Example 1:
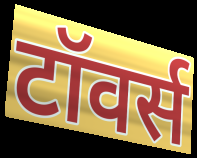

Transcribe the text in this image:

टॉवर्स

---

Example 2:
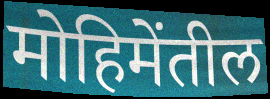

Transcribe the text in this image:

मोहिमेंतील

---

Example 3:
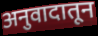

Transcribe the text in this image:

अनुवादातून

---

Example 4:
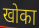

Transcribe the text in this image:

खोका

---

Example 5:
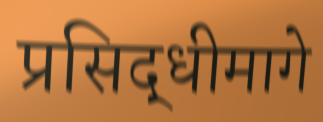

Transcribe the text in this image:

प्रसिद्धीमागे